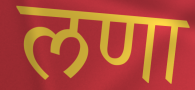
लणा